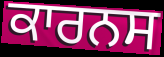
ਕਾਰਨਸ